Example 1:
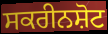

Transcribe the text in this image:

ਸਕਰੀਨਸ਼ੋਟ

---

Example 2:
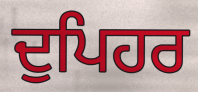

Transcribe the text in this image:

ਦੁਪਿਹਰ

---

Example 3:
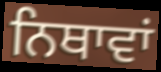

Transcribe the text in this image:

ਨਿਥਾਵਾਂ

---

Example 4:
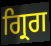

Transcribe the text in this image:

ਗ੍ਰਿਗ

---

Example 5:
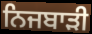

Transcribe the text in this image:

ਨਿਜਬਾੜੀ